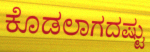
ಕೊಡಲಾಗದಷ್ಟು